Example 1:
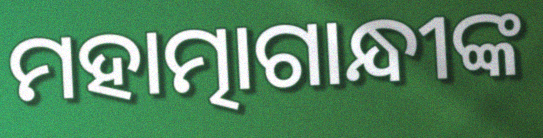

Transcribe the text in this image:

ମହାତ୍ମାଗାନ୍ଧୀଙ୍କ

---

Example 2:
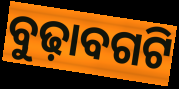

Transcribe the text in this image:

ବୁଢ଼ାବଗଟି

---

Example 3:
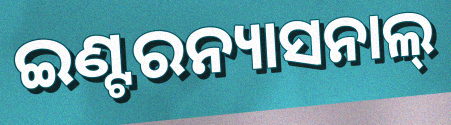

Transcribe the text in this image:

ଇଣ୍ଟରନ୍ୟାସନାଲ୍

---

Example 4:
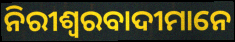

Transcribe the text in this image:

ନିରୀଶ୍ବରବାଦୀମାନେ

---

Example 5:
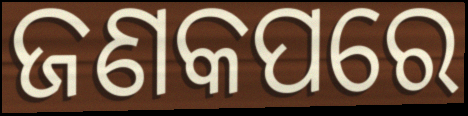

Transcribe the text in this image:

ଜଣକପରେ